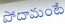
పోదామంటే